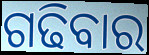
ଗଢିବାର